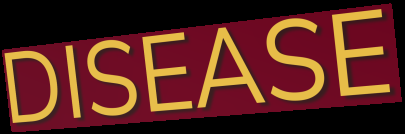
DISEASE